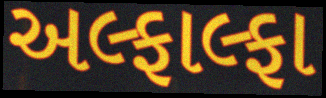
અલ્ફાલ્ફા